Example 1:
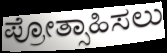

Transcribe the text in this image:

ಪ್ರೋತ್ಸಾಹಿಸಲು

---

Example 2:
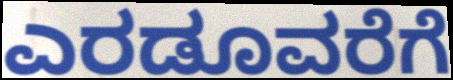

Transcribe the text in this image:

ಎರಡೂವರೆಗೆ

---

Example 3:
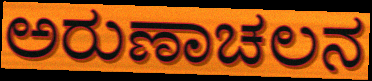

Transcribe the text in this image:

ಅರುಣಾಚಲನ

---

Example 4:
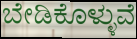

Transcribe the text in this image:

ಬೇಡಿಕೊಳ್ಳುವೆ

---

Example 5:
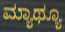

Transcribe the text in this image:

ಮ್ಯಾಥ್ಯೂ